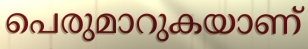
പെരുമാറുകയാണ്